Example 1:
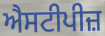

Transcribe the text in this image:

ਐਸਟੀਪੀਜ਼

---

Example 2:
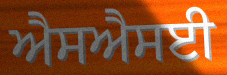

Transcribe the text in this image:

ਐਸਐਸਈ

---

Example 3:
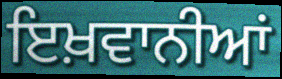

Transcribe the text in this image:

ਇਖ਼ਵਾਨੀਆਂ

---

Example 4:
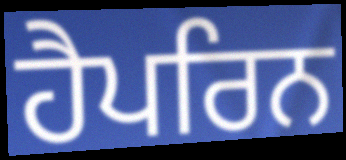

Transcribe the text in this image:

ਹੈਪਰਿਨ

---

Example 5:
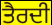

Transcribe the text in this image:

ਤੈਰਦੀ